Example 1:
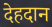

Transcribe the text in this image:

देहदान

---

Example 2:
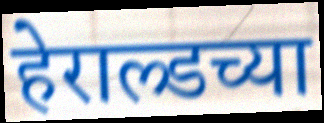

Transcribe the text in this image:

हेराल्डच्या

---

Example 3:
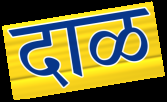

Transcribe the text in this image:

दाळ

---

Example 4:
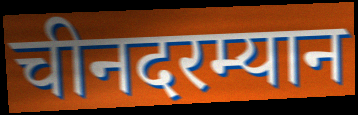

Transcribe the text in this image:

चीनदरम्यान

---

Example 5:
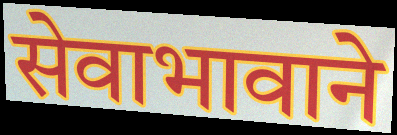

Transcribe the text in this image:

सेवाभावाने